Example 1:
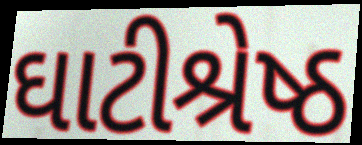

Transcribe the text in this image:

ઘાટીશ્રેષ્ઠ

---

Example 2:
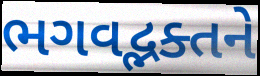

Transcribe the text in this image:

ભગવદ્ભક્તને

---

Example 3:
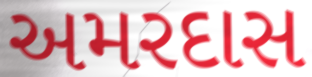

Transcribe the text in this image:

અમરદાસ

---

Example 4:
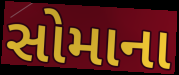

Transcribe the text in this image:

સોમાના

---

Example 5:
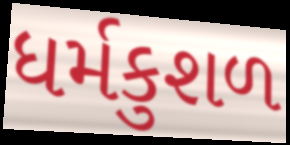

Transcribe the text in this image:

ધર્મકુશળ